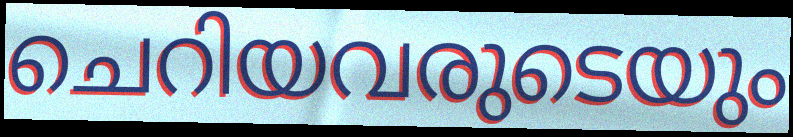
ചെറിയവരുടെയും